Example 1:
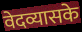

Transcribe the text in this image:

वेदव्यासके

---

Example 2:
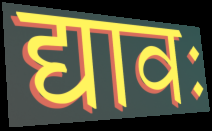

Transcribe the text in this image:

द्यावः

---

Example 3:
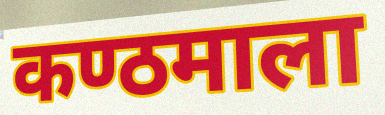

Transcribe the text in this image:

कण्ठमाला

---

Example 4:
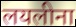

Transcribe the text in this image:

लयलीना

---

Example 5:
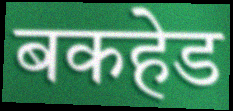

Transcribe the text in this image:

बकहेड